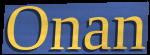
Onan